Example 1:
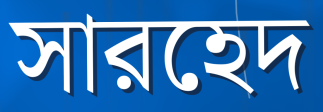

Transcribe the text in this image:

সারহেদ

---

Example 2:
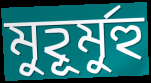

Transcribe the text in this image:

মুহূর্মুহু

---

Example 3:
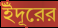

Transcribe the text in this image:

ইঁদূরের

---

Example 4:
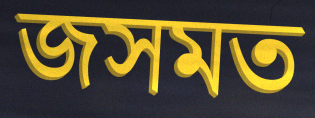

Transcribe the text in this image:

জসমত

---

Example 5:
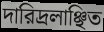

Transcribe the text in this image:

দারিদ্রলাঞ্ছিত